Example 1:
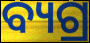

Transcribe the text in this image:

ବ୍ୟଗ୍ର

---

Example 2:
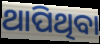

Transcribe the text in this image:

ଥାପିଥିବା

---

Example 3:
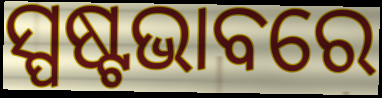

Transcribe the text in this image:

ସ୍ପଷ୍ଟଭାବରେ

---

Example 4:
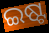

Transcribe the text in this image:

ଇଷ୍ଟ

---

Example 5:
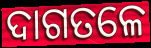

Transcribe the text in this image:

ଦାଗତଳେ